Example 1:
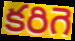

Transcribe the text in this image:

కరిగె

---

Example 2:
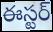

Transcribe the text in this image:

ఈస్టర్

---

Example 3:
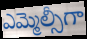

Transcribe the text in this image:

ఎమ్మెల్సీగా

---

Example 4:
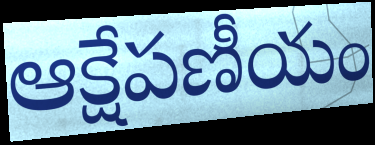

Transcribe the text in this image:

ఆక్షేపణీయం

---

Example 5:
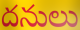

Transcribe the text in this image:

దనులు